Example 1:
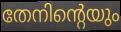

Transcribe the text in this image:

തേനിന്റെയും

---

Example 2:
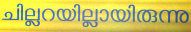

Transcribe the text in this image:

ചില്ലറയില്ലായിരുന്നു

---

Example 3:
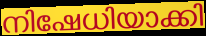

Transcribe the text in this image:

നിഷേധിയാക്കി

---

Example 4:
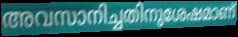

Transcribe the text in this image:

അവസാനിച്ചതിനുശേഷമാണ്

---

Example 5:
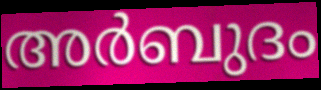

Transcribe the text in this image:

അർബുദം